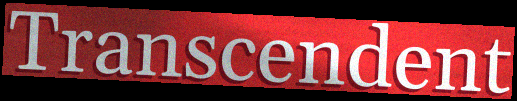
Transcendent